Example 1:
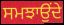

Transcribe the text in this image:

ਸਮਝਾਉਂਦੇ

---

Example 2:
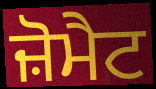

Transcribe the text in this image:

ਜ਼ੋਮੈਟ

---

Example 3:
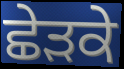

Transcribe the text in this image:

ਛੇੜਕੇ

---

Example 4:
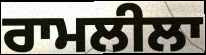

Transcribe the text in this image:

ਰਾਮਲੀਲਾ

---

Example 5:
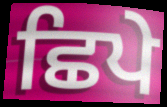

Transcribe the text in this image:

ਛਿਪੇ